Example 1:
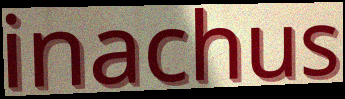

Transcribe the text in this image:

inachus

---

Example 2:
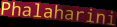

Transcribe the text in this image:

Phalaharini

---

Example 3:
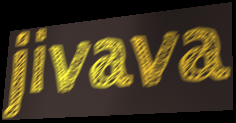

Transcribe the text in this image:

jivava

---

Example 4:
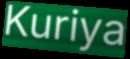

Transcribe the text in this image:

Kuriya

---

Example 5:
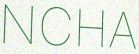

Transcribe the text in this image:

NCHA